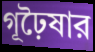
গূঢ়ৈষার